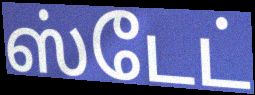
ஸ்டேட்